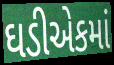
ઘડીએકમાં